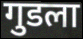
गुडला